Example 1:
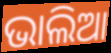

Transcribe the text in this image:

ଭାଲିଆ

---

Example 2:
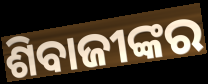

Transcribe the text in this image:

ଶିବାଜୀଙ୍କର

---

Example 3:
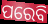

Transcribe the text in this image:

ପରେବି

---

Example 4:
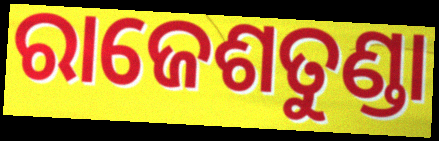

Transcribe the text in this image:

ରାଜେଶତୁଣ୍ଡା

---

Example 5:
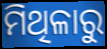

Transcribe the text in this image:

ମିଥିଳାରୁ